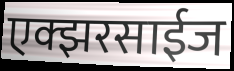
एक्झरसाईज